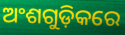
ଅଂଶଗୁଡ଼ିକରେ